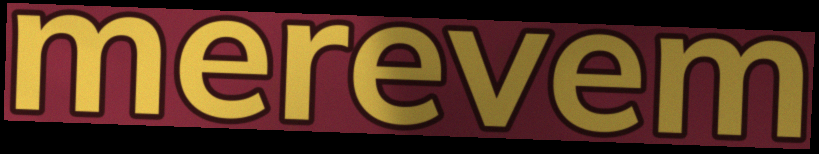
merevem